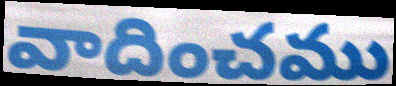
వాదించము